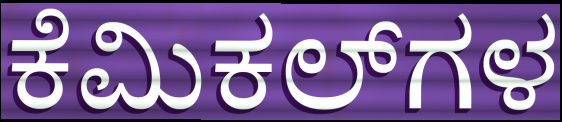
ಕೆಮಿಕಲ್‌ಗಳ